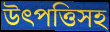
উৎপত্তিসহ